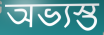
অভ্যস্ত